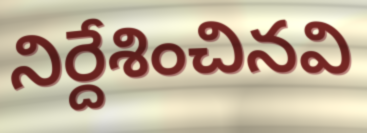
నిర్దేశించినవి